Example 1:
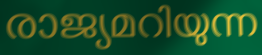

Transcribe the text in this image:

രാജ്യമറിയുന്ന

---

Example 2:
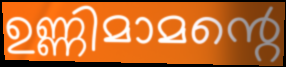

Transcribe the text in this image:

ഉണ്ണിമാമന്റെ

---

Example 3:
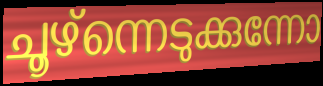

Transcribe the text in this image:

ചൂഴ്ന്നെടുക്കുന്നോ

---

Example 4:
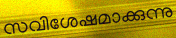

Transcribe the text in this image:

സവിശേഷമാക്കുന്നു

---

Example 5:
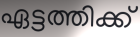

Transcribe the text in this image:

ഏട്ടത്തിക്ക്